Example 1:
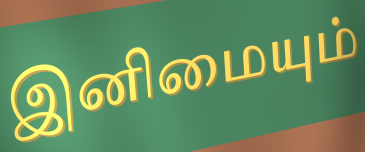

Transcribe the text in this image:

இனிமையும்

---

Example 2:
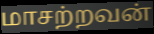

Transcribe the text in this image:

மாசற்றவன்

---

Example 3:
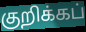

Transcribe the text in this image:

குறிக்கப்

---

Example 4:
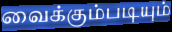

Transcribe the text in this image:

வைக்கும்படியும்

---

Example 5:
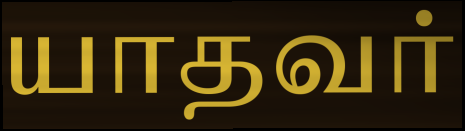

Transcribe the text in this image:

யாதவர்